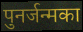
पुनर्जन्मका